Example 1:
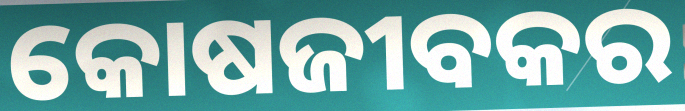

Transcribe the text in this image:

କୋଷଜୀବକର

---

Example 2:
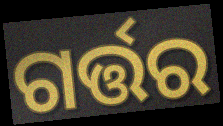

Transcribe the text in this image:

ଗର୍ତ୍ତର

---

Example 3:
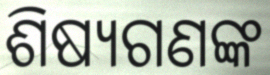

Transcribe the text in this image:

ଶିଷ୍ୟଗଣଙ୍କ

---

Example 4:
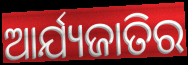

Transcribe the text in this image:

ଆର୍ଯ୍ୟଜାତିର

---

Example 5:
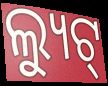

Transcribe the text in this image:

ଲ୍ୟୁଟ୍